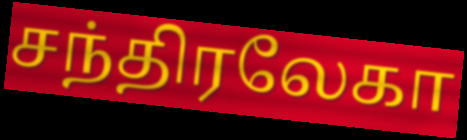
சந்திரலேகா